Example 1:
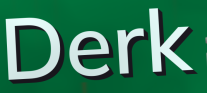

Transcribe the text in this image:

Derk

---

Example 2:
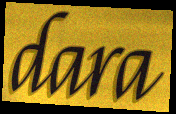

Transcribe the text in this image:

dara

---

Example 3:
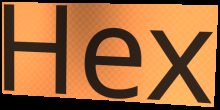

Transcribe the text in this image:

Hex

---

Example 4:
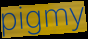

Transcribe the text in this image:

pigmy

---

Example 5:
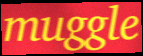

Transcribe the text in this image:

muggle